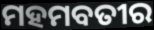
ମହମବତୀର